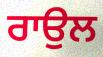
ਰਾਉਲ